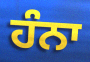
ਹੰਨਾ